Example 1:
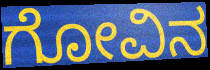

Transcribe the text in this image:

ಗೋವಿನ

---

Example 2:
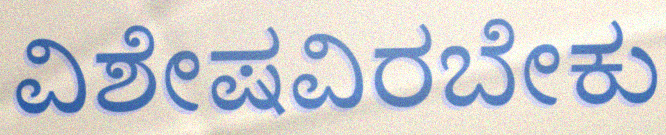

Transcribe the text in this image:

ವಿಶೇಷವಿರಬೇಕು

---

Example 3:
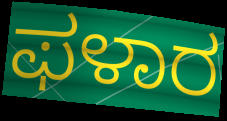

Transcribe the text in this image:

ಫಳಾರ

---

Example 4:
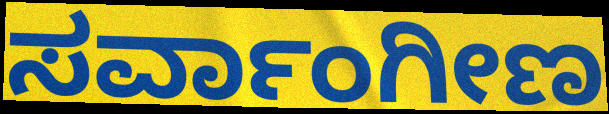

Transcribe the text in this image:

ಸರ್ವಾಂಗೀಣ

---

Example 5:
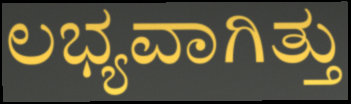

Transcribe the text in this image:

ಲಭ್ಯವಾಗಿತ್ತು